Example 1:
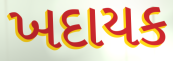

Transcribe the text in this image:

ખદાયક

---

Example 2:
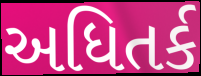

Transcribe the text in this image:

અધિતર્ક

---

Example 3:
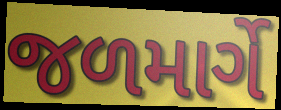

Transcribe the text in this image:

જળમાર્ગે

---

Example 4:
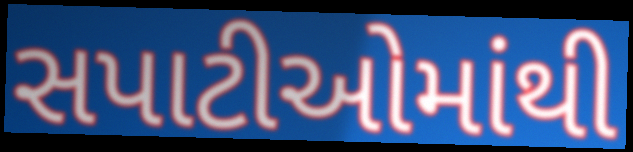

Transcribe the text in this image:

સપાટીઓમાંથી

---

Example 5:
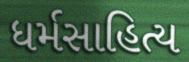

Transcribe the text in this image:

ધર્મસાહિત્ય